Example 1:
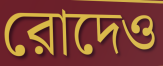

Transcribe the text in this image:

রোদেও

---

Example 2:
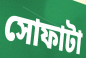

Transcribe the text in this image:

সোফাটা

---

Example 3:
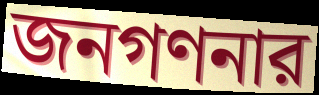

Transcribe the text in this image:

জনগণনার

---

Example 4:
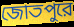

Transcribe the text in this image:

জোতপুরে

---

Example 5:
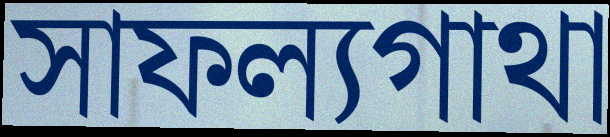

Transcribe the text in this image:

সাফল্যগাথা